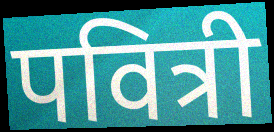
पवित्री